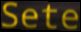
Sete